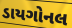
ડાયગોનલ